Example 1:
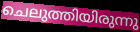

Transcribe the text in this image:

ചെലുത്തിയിരുന്നു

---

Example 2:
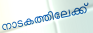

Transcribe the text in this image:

നാടകത്തിലേക്ക്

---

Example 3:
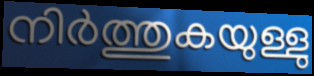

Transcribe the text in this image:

നിർത്തുകയുള്ളു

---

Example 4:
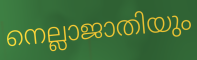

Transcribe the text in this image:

നെല്ലാജാതിയും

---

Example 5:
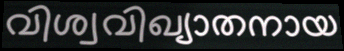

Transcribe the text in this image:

വിശ്വവിഖ്യാതനായ